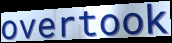
overtook